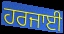
ਹਰਜਾਈ